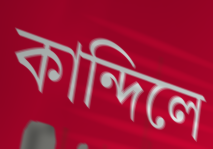
কান্দিলে